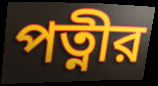
পত্নীর